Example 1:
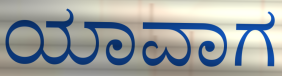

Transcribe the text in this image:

ಯಾವಾಗ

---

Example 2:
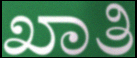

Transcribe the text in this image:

ಖಾತಿ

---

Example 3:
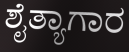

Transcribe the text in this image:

ಶೈತ್ಯಾಗಾರ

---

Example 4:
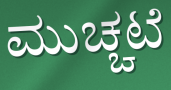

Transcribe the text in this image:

ಮುಚ್ಚಟೆ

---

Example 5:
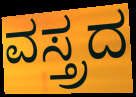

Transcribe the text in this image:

ವಸ್ತ್ರದ